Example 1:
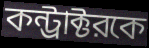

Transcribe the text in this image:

কন্ট্রাক্টরকে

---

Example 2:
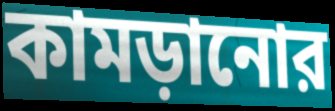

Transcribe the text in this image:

কামড়ানোর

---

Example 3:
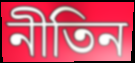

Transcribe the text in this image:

নীতিন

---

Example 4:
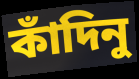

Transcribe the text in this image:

কাঁদিনু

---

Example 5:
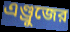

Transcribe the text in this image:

এণ্ড্রুজের